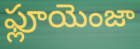
ఫ్లూయెంజా